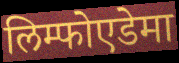
लिम्फोएडेमा